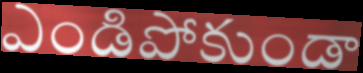
ఎండిపోకుండా